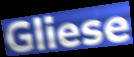
Gliese